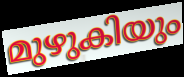
മുഴുകിയും